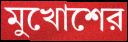
মুখোশের